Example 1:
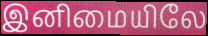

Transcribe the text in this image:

இனிமையிலே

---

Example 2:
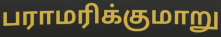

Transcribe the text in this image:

பராமரிக்குமாறு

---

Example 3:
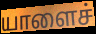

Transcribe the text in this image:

யாளைச்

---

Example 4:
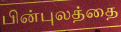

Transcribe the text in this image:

பின்புலத்தை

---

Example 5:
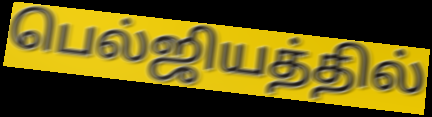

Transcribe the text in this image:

பெல்ஜியத்தில்